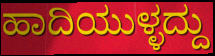
ಹಾದಿಯುಳ್ಳದ್ದು